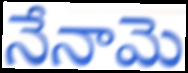
నేనామె